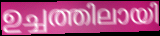
ഉച്ചത്തിലായി